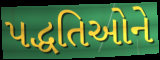
પદ્ધતિઓને